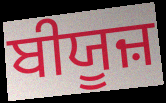
ਬੀਯੂਜ਼